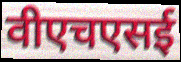
वीएचएसई